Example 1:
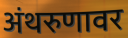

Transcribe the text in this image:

अंथरुणावर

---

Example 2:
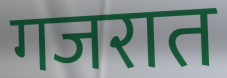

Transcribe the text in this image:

गजरात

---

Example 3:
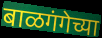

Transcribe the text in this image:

बाळगंगेच्या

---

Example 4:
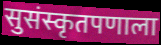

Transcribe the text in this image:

सुसंस्कृतपणाला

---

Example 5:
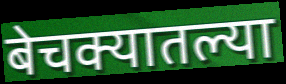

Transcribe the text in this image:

बेचक्यातल्या